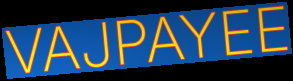
VAJPAYEE